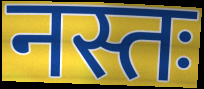
नस्तः